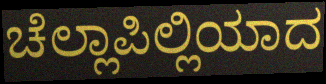
ಚೆಲ್ಲಾಪಿಲ್ಲಿಯಾದ